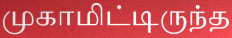
முகாமிட்டிருந்த